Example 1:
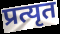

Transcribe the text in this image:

प्रत्यृत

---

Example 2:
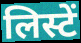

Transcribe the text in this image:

लिस्टें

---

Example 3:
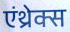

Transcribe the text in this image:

एंथ्रेक्स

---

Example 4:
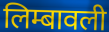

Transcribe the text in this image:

लिम्बावली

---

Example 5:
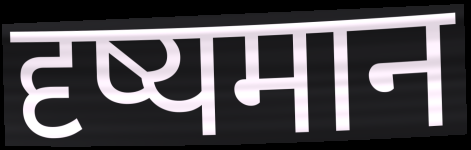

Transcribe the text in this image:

दृष्यमान